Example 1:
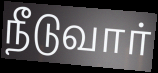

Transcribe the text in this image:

நீடுவார்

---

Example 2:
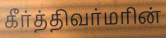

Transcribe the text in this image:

கீர்த்திவர்மரின்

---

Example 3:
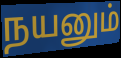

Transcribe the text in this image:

நயனும்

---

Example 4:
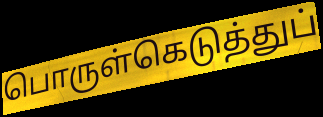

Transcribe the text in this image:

பொருள்கெடுத்துப்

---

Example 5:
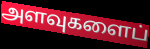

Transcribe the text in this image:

அளவுகளைப்